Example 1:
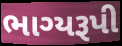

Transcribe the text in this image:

ભાગ્યરૂપી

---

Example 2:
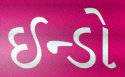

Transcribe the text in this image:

ઈન્ડો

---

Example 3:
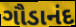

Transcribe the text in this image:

ગૌડાનંદ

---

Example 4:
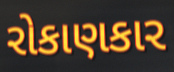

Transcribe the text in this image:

રોકાણકાર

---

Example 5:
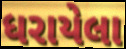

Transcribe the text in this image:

ધરાયેલા